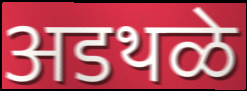
अडथळे